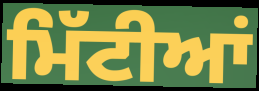
ਮਿੱਟੀਆਂ